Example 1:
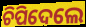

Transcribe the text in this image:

ଚିପିଦେଲେ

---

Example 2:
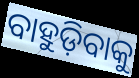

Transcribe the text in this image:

ବାହୁଡ଼ିବାକୁ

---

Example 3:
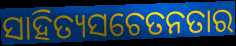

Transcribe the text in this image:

ସାହିତ୍ୟସଚେତନତାର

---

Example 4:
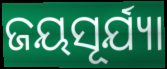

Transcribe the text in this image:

ଜୟସୂର୍ଯ୍ୟା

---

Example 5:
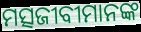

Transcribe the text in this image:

ମତ୍ସଜୀବୀମାନଙ୍କ